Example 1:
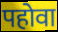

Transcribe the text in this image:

पहोवा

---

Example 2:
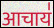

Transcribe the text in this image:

आचाय॑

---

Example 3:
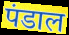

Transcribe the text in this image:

पंडाल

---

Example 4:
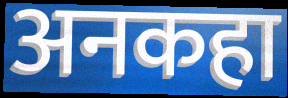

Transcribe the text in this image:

अनकहा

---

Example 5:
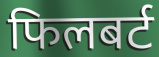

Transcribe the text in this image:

फिलबर्ट